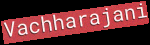
Vachharajani